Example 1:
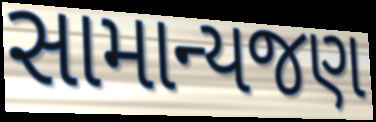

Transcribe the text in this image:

સામાન્યજણ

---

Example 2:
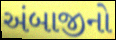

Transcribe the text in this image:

અંબાજીનો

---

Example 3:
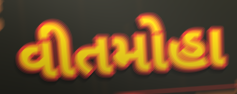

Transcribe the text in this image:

વીતમોહા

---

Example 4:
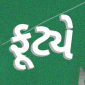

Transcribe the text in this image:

ફૂટ્યે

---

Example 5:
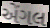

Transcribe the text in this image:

એંગલ